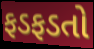
ફડફડતો